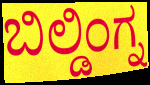
ಬಿಲ್ಡಿಂಗ್ನ